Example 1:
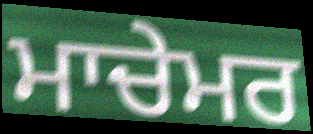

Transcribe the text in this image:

ਮਾਚੇਮਰ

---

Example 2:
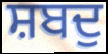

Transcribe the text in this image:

ਸ਼ਬਦੁ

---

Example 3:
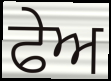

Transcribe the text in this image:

ਫੇਅ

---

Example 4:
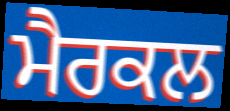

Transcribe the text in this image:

ਮੈਰਕਲ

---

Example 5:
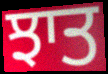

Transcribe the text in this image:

ਝਾਤ